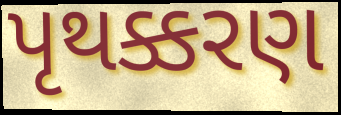
પૃથક્કરણ